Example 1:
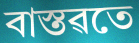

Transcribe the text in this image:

বাস্তৱতে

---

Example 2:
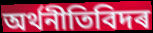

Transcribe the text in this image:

অৰ্থনীতিবিদৰ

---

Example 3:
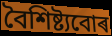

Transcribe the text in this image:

বৈশিষ্ট্যবোৰ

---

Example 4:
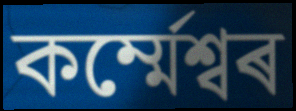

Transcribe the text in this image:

কৰ্ম্মেশ্বৰ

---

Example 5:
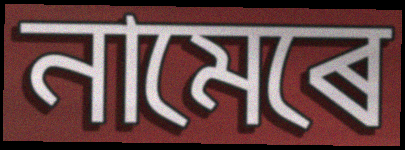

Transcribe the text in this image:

নামেৰে